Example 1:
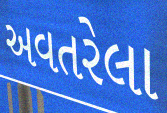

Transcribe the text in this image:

અવતરેલા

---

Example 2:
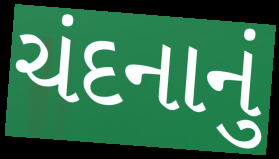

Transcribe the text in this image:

ચંદનાનું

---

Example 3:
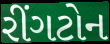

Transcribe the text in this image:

રીંગટોન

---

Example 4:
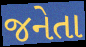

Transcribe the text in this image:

જનેતા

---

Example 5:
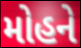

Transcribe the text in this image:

મોહને